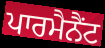
ਪਾਰਮੈਨੈਂਟ